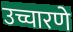
उच्चारणे